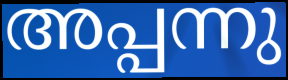
അപ്പന്നു